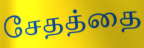
சேதத்தை